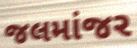
જલમાંજર